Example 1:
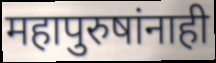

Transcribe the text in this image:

महापुरुषांनाही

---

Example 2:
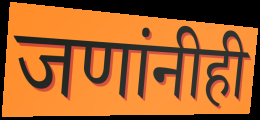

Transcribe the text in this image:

जणांनीही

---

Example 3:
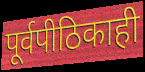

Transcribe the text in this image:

पूर्वपीठिकाही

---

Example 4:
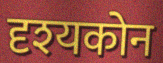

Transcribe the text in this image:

दृश्‍यकोन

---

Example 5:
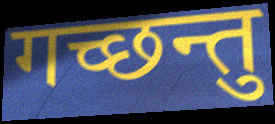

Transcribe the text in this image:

गच्छन्तु